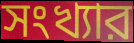
সংখ্যার